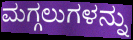
ಮಗ್ಗಲುಗಳನ್ನು